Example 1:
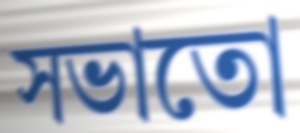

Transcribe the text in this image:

সভাতো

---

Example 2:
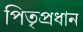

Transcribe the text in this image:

পিতৃপ্ৰধান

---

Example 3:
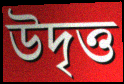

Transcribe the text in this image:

উদৃত্ত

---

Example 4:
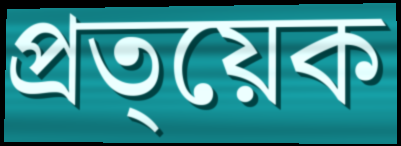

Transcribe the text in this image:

প্ৰত্য়েক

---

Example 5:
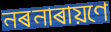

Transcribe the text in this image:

নৰনাৰায়ণে